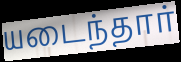
யடைந்தார்